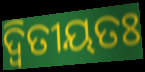
ଦ୍ବିତୀୟତଃ